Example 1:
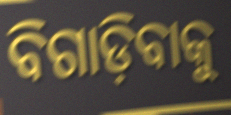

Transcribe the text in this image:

ବିଗାଡ଼ିବାକୁ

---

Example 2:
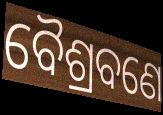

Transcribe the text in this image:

ବୈଶ୍ରବଣେ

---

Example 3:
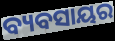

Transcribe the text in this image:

ବ୍ୟବସାୟର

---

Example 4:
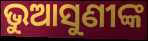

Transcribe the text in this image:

ଭୁଆସୁଣୀଙ୍କ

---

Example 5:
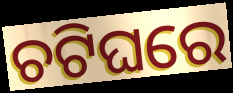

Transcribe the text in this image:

ଚଟିଘରେ